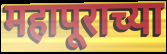
महापूराच्या